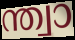
ന്ത്വാ